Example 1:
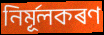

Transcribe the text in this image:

নিৰ্মূলকৰণ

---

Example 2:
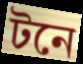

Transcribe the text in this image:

টনে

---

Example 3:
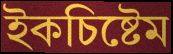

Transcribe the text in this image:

ইকচিষ্টেম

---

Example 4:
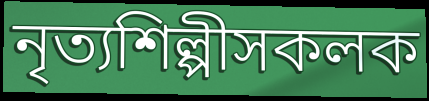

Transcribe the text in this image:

নৃত্যশিল্পীসকলক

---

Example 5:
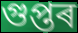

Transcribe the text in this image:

গুপ্তৰ